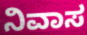
ನಿವಾಸ